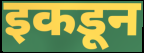
इकडून